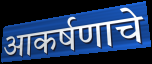
आकर्षणाचे